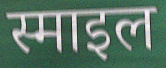
स्माइल